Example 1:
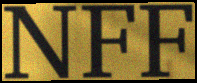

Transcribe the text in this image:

NFF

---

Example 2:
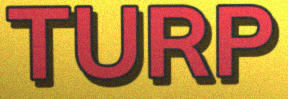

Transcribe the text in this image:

TURP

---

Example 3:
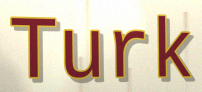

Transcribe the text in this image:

Turk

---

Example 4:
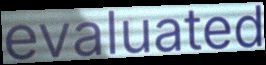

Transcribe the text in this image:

evaluated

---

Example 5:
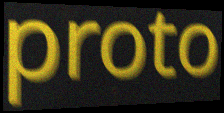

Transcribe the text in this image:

proto